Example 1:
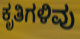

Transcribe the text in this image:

ಕೃತಿಗಳಿವು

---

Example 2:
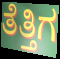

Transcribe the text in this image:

ತೆತ್ತಿಗ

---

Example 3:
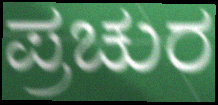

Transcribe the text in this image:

ಪ್ರಚುರ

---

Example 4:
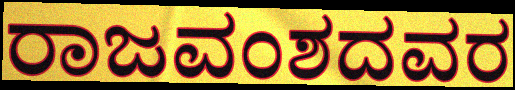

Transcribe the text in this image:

ರಾಜವಂಶದವರ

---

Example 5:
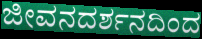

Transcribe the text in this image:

ಜೀವನದರ್ಶನದಿಂದ